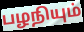
பழநியும்